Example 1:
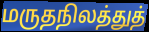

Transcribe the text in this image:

மருதநிலத்துத்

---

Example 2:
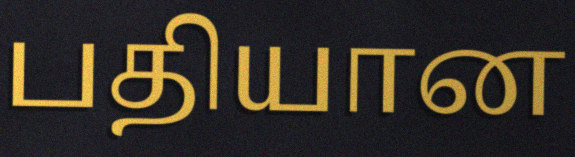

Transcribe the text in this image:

பதியான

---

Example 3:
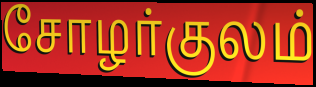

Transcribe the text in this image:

சோழர்குலம்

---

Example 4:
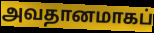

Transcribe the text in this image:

அவதானமாகப்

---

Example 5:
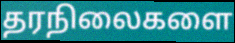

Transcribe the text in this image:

தரநிலைகளை